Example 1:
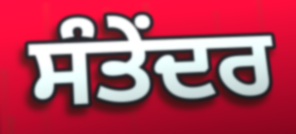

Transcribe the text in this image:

ਸੰਤੇਂਦਰ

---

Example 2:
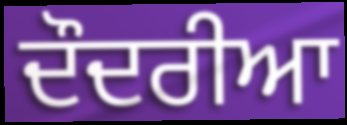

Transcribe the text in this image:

ਦੌਦਰੀਆ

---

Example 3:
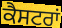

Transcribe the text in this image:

ਕੈਸਟਰਾਂ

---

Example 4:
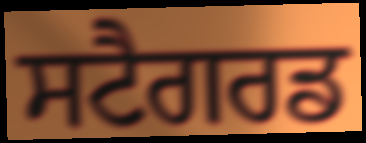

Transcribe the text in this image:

ਸਟੈਗਰਡ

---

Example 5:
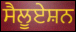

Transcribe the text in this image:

ਸੈਲੂਏਸ਼ਨ